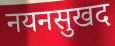
नयनसुखद